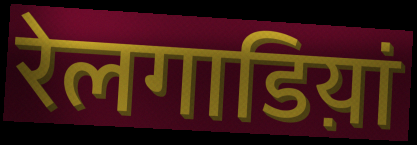
रेलगाडिय़ां